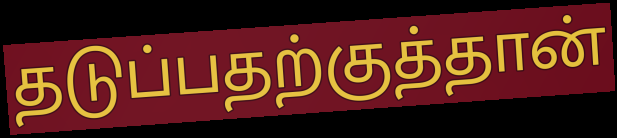
தடுப்பதற்குத்தான்